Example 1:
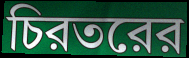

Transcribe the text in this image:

চিরতরের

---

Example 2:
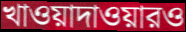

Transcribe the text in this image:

খাওয়াদাওয়ারও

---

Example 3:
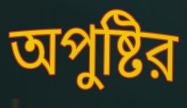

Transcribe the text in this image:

অপুষ্টির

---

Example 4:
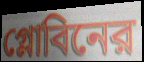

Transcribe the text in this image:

গ্লোবিনের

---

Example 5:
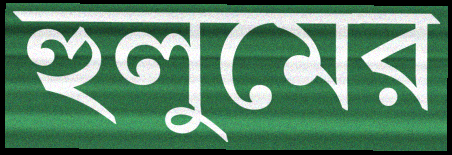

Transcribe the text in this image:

হুলুমের